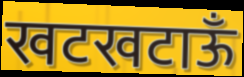
खटखटाऊँ